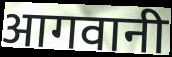
आगवानी